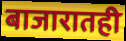
बाजारातही